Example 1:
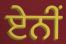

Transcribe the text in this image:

ਏਨੀਂ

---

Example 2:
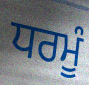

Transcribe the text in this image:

ਧਰਮੂੰ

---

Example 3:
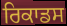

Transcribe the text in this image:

ਰਿਕਾਡਸ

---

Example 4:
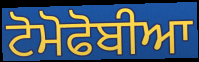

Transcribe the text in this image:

ਟੋਮੋਫੋਬੀਆ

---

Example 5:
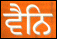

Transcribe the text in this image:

ਵੈਨਿ